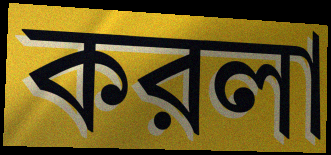
করলা